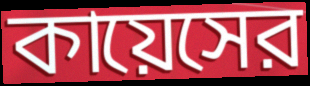
কায়েসের